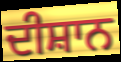
ਦੀਸ਼ਾਨ